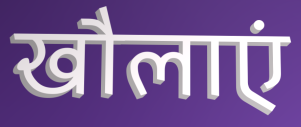
खौलाएं